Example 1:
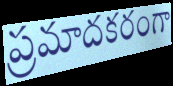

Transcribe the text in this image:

ప్రమాదకరంగా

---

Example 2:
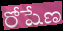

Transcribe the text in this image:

రోషేణ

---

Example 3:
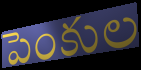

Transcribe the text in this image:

పెంకుల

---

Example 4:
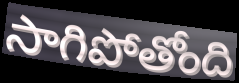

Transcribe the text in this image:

సాగిపోతోంది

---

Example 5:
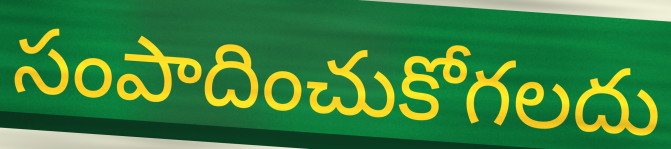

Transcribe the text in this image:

సంపాదించుకోగలదు